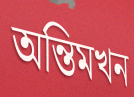
অন্তিমখন